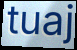
tuaj